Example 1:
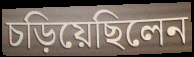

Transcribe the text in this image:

চড়িয়েছিলেন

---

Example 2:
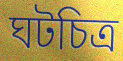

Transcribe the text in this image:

ঘটচিত্র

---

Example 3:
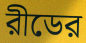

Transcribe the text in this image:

রীডের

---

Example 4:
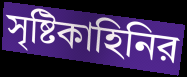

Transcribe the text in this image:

সৃষ্টিকাহিনির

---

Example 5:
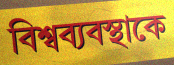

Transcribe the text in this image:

বিশ্বব্যবস্থাকে